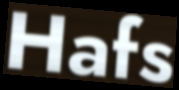
Hafs